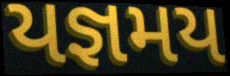
યજ્ઞમય